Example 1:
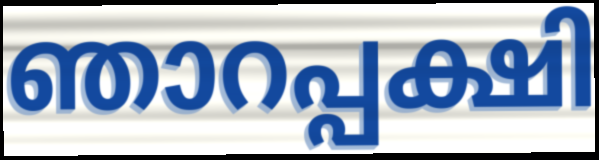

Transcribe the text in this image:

ഞാറപ്പക്ഷി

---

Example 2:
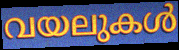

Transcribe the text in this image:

വയലുകൾ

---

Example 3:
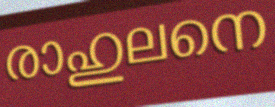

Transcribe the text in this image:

രാഹുലനെ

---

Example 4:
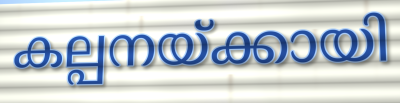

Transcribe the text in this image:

കല്പനയ്ക്കായി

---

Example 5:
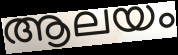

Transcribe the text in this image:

ആലയം